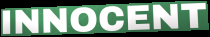
INNOCENT